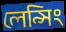
লেন্সিং